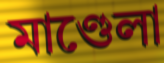
মাণ্ডেলা